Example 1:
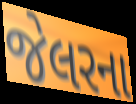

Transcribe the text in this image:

જેલરના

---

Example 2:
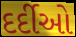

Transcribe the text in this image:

દર્દીઓ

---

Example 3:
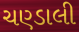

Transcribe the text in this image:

ચણ્ડાલી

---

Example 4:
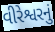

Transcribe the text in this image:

વીરેશ્વરનું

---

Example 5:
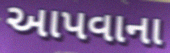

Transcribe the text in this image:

આપવાના